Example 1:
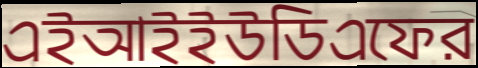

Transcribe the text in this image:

এইআইইউডিএফের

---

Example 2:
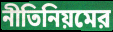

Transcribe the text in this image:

নীতিনিয়মের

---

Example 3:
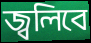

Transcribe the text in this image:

জ্বলিবে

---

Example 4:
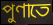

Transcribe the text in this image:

পুণাতে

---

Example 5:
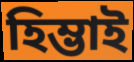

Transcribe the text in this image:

হিম্ভাই